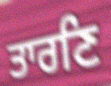
ਤਾਰਣਿ